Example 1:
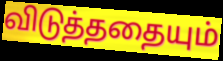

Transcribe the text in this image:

விடுத்ததையும்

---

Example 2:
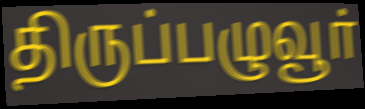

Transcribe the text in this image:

திருப்பழுவூர்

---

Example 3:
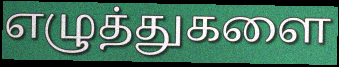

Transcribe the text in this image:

எழுத்துகளை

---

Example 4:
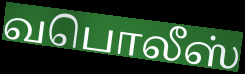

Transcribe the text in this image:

வபொலீஸ்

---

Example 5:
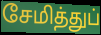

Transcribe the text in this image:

சேமித்துப்